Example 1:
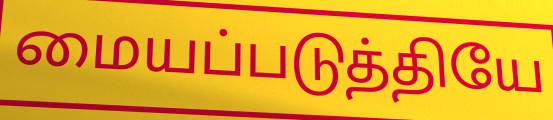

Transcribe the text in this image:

மையப்படுத்தியே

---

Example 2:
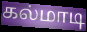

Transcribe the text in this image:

கல்மாடி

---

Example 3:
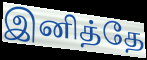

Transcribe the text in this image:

இனித்தே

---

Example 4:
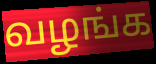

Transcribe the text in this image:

வழங்க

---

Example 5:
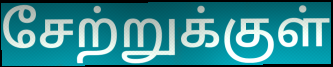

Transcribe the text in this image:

சேற்றுக்குள்